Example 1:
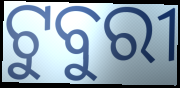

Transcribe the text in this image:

ଟୁବୁରୀ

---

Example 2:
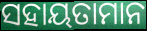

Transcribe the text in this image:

ସହାୟତାମାନ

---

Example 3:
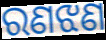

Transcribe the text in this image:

ରଣଝଣ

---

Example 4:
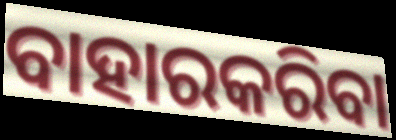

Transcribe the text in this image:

ବାହାରକରିବା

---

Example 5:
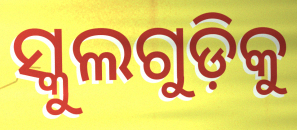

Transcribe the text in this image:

ସ୍କୁଲଗୁଡ଼ିକୁ